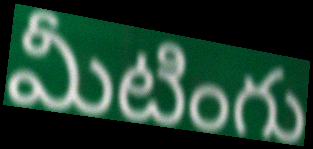
మీటింగు